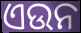
ଏଉନ